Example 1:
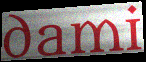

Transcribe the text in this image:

dami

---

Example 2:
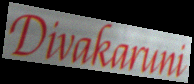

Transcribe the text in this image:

Divakaruni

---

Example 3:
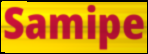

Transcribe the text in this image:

Samipe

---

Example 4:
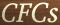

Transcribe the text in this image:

CFCs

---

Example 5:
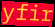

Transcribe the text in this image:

yfir